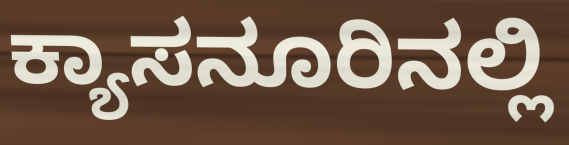
ಕ್ಯಾಸನೂರಿನಲ್ಲಿ